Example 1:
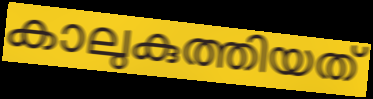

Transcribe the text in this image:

കാലുകുത്തിയത്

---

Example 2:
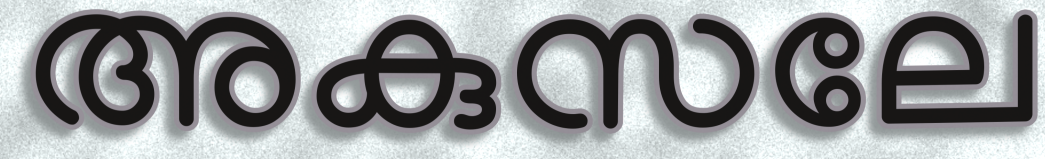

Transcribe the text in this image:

അകുസലേ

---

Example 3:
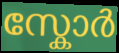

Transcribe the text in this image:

സ്കോർ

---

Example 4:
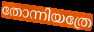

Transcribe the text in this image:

തോന്നിയത്രേ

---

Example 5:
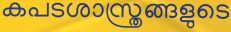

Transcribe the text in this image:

കപടശാസ്ത്രങ്ങളുടെ